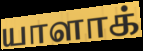
யாளாக்